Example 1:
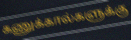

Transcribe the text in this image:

கணுக்கால்களுக்கு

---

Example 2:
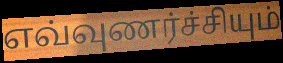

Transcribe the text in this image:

எவ்வுணர்ச்சியும்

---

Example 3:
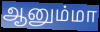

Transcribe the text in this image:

ஆனும்மா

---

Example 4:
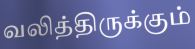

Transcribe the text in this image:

வலித்திருக்கும்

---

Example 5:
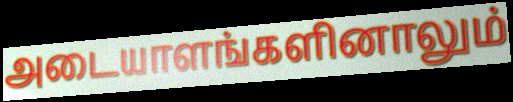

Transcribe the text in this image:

அடையாளங்களினாலும்